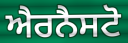
ਐਰਨੈਸਟੋ